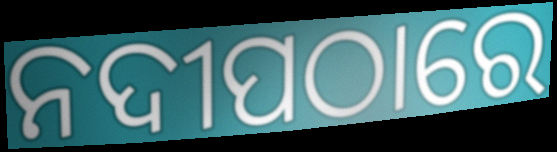
ନଦୀପଠାରେ